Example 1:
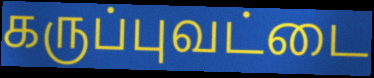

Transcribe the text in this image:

கருப்புவட்டை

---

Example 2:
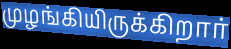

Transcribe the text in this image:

முழங்கியிருக்கிறார்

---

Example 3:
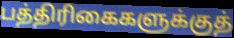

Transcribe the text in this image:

பத்திரிகைகளுக்குத்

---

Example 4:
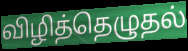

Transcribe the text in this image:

விழித்தெழுதல்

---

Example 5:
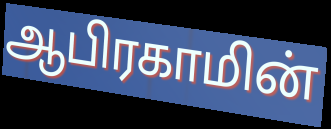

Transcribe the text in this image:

ஆபிரகாமின்